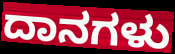
ದಾನಗಳು